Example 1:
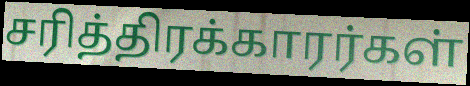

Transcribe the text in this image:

சரித்திரக்காரர்கள்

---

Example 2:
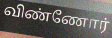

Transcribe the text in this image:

விண்ணோர்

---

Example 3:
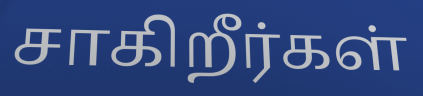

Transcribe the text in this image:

சாகிறீர்கள்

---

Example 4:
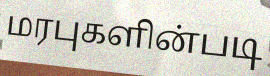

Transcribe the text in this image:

மரபுகளின்படி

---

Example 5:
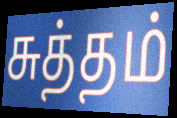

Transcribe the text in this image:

சுத்தம்